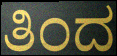
ತಿಂದ